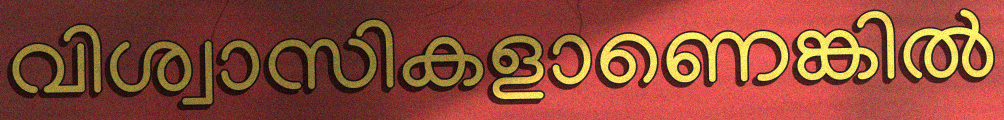
വിശ്വാസികളാണെങ്കിൽ